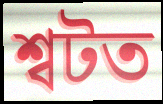
শ্বটত